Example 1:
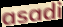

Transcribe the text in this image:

asadi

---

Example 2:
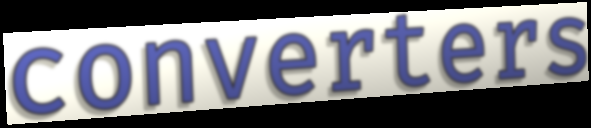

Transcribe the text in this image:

converters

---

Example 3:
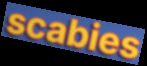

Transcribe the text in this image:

scabies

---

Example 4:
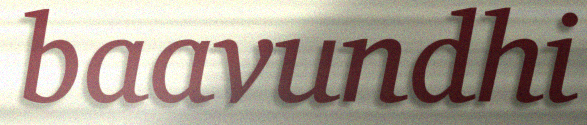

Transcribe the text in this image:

baavundhi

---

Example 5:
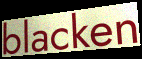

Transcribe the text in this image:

blacken